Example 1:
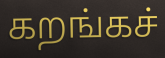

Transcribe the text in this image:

கறங்கச்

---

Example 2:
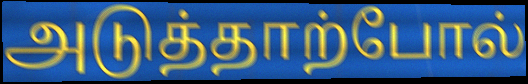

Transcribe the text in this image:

அடுத்தாற்போல்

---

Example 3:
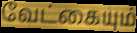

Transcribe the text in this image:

வேட்கையும்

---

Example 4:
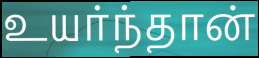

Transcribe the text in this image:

உயர்ந்தான்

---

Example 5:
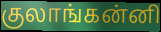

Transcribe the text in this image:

குலாங்கன்னி